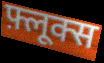
फ़्लूक्स